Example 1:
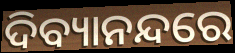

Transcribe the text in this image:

ଦିବ୍ୟାନନ୍ଦରେ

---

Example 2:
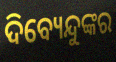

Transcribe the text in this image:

ଦିବ୍ୟେନ୍ଦୁଙ୍କର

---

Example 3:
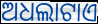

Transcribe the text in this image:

ଅଧଲାଟାଏ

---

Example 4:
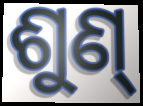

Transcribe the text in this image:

ଶୁଣ୍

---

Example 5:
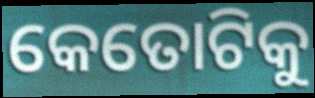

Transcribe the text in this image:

କେତୋଟିକୁ